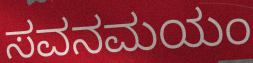
ಸವನಮಯಂ